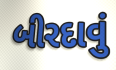
બીરદાવું